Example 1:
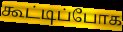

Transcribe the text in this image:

கூட்டிப்போக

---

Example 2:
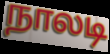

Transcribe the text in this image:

நாலடி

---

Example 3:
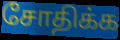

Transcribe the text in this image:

சோதிக்க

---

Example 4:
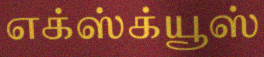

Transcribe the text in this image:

எக்ஸ்க்யூஸ்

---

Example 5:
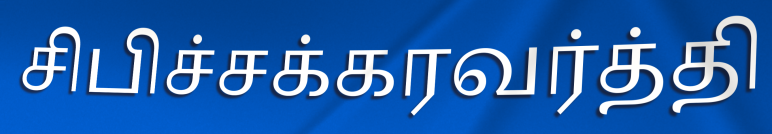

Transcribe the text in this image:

சிபிச்சக்கரவர்த்தி